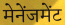
मेनेंजमेंट